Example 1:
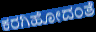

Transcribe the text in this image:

ಕರಗಿಹೋದಂತೆ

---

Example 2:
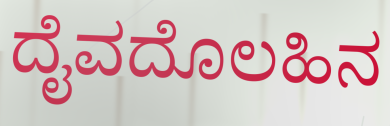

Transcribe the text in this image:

ದೈವದೊಲಹಿನ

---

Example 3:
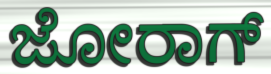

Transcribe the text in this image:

ಜೋರಾಗ್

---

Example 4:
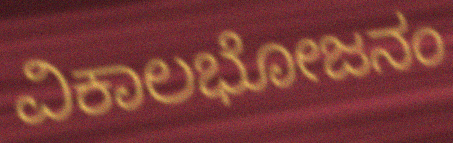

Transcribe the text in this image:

ವಿಕಾಲಭೋಜನಂ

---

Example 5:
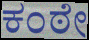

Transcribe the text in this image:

ಕಂಠೇ